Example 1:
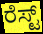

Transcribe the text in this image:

ರೆಸ್ಟ್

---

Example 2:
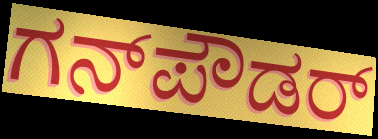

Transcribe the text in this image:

ಗನ್‌ಪೌಡರ್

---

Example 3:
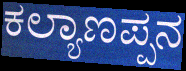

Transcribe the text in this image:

ಕಲ್ಯಾಣಪ್ಪನ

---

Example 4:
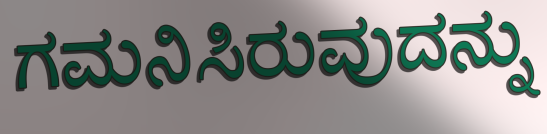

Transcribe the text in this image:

ಗಮನಿಸಿರುವುದನ್ನು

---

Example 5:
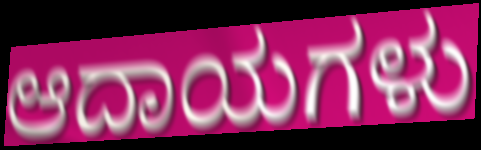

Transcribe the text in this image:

ಆದಾಯಗಳು